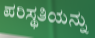
ಪರಿಸ್ಥತಿಯನ್ನು